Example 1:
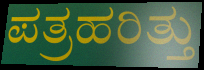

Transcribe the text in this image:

ಪತ್ರಹರಿತ್ತು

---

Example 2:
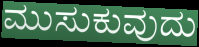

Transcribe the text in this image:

ಮುಸುಕುವುದು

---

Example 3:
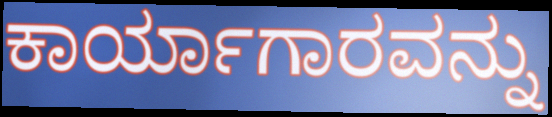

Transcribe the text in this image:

ಕಾರ್ಯಾಗಾರವನ್ನು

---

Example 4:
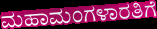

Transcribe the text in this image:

ಮಹಾಮಂಗಳಾರತಿಗೆ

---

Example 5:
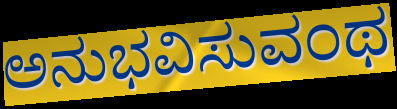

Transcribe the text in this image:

ಅನುಭವಿಸುವಂಥ